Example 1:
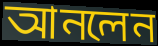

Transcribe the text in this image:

আনলেন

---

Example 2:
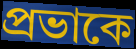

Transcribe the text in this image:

প্রভাকে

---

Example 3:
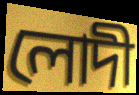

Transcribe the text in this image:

লোদী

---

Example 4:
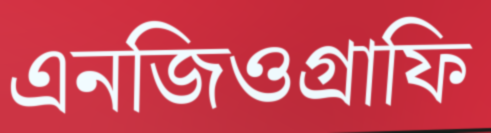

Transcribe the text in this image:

এনজিওগ্রাফি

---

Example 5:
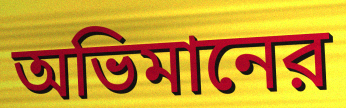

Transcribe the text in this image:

অভিমানের